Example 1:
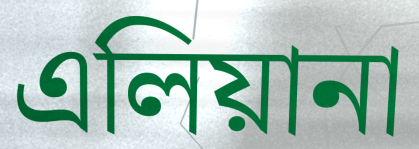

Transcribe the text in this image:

এলিয়ানা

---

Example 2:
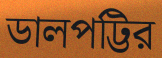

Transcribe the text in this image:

ডালপট্টির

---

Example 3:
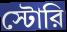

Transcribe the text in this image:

স্টোরি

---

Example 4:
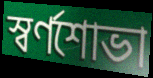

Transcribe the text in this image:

স্বর্ণশোভা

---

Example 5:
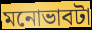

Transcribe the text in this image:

মনোভাবটা